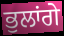
ਭੁਲਾਂਗੇ